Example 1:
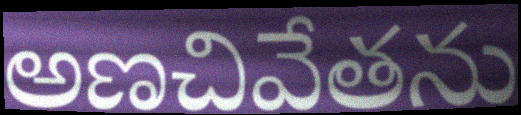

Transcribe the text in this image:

అణచివేతను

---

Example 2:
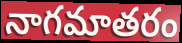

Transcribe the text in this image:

నాగమాతరం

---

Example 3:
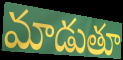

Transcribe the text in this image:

మాడుతూ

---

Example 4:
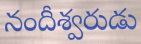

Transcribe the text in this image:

నందీశ్వరుడు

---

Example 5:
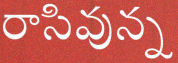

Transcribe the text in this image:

రాసివున్న